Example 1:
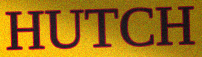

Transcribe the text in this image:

HUTCH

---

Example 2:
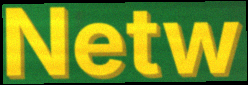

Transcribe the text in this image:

Netw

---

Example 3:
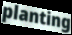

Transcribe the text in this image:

planting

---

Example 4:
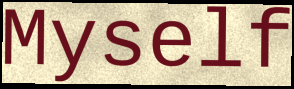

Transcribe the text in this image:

Myself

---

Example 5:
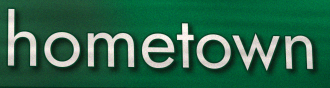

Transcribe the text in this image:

hometown